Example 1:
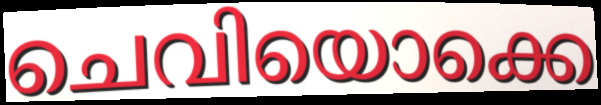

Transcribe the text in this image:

ചെവിയൊക്കെ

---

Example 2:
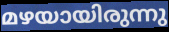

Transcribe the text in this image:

മഴയായിരുന്നു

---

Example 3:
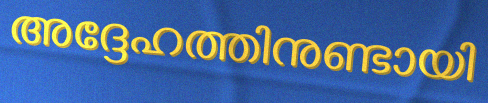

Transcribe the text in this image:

അദ്ദേഹത്തിനുണ്ടായി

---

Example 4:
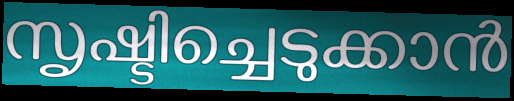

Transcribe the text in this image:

സൃഷ്ടിച്ചെടുക്കാൻ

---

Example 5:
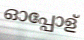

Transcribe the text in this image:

ഓപ്പോള്